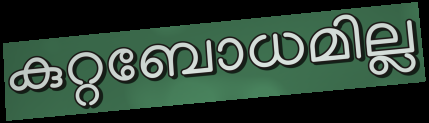
കുറ്റബോധമില്ല